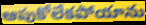
ఆపుకోలేకపోయాను